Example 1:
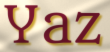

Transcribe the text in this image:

Yaz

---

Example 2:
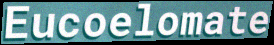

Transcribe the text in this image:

Eucoelomate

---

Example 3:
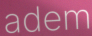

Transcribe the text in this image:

adem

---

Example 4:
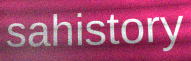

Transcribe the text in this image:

sahistory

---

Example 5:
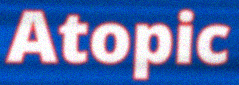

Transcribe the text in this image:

Atopic